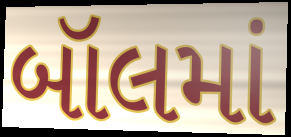
બૉલમાં